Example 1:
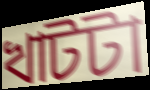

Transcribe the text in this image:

খাটটা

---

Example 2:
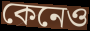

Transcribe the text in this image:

কেনেও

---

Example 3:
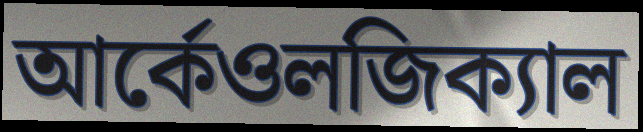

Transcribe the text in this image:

আর্কেওলজিক্যাল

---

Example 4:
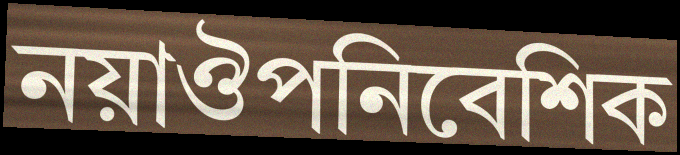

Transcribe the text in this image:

নয়াঔপনিবেশিক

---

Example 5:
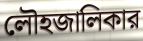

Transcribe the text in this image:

লৌহজালিকার